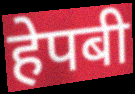
हेपबी